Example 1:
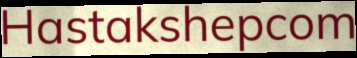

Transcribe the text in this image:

Hastakshepcom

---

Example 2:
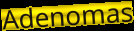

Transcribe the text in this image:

Adenomas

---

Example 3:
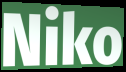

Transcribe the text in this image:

Niko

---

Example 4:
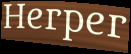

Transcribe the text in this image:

Herper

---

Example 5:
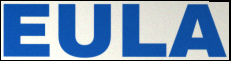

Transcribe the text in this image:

EULA